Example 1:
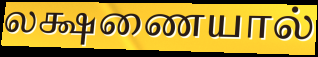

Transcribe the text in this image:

லக்ஷணையால்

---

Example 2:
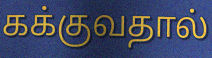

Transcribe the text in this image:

கக்குவதால்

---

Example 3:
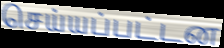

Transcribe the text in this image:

செய்யப்பட்டன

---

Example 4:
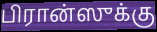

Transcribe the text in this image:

பிரான்ஸுக்கு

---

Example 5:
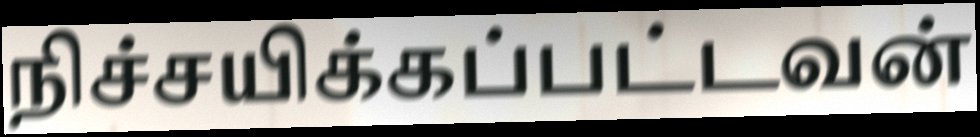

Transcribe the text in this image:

நிச்சயிக்கப்பட்டவன்